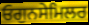
ਓਗੁਨਸੇਮਿਲਰ